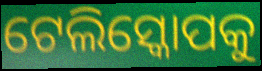
ଟେଲିସ୍କୋପକୁ